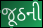
જૂઠની